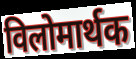
विलोमार्थक